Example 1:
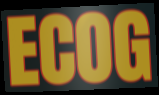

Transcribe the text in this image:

ECOG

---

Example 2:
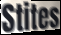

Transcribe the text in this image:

Stites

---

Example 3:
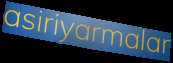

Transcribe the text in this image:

asiriyarmalar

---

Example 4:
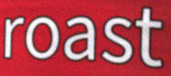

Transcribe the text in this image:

roast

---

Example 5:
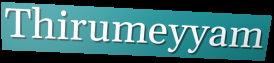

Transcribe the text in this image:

Thirumeyyam